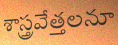
శాస్త్రవేత్తలనూ